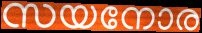
സയനോര